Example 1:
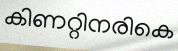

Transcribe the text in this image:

കിണറ്റിനരികെ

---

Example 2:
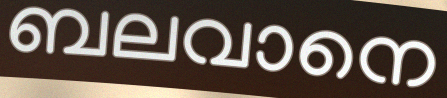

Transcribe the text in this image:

ബലവാനെ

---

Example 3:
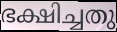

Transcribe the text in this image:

ഭക്ഷിച്ചതു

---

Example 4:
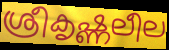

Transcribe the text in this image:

ശ്രീകൃഷ്ണലീല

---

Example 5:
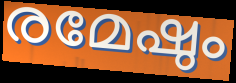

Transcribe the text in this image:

രമേഷും